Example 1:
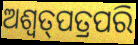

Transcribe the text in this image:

ଅଶ୍ଵତ୍‌ପତ୍ରପରି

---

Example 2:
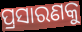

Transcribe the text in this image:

ପ୍ରସାରଣକୁ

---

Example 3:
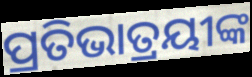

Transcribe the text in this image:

ପ୍ରତିଭାତ୍ରୟୀଙ୍କ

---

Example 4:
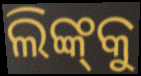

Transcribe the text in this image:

ଲିଙ୍କ୍‌କୁ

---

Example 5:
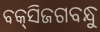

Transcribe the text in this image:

ବକ୍‌ସିଜଗବନ୍ଧୁ